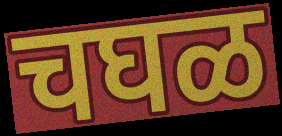
चघळ